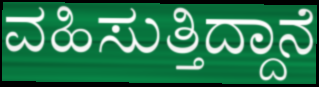
ವಹಿಸುತ್ತಿದ್ದಾನೆ